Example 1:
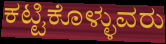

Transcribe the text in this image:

ಕಟ್ಟಿಕೊಳ್ಳುವರು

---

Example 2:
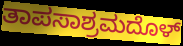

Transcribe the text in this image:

ತಾಪಸಾಶ್ರಮದೊಳ್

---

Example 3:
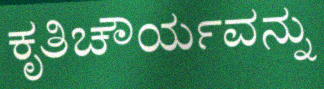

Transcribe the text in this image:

ಕೃತಿಚೌರ್ಯವನ್ನು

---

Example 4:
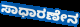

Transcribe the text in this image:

ಸಾಧಾರಣೇನ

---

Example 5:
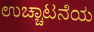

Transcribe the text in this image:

ಉಚ್ಚಾಟನೆಯ